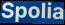
Spolia